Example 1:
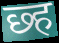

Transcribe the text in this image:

छ्ह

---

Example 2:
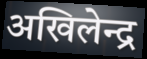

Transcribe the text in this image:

अखिलेन्द्र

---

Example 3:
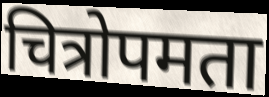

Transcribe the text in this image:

चित्रोपमता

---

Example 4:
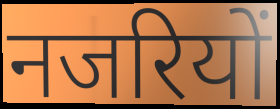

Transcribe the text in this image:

नजरियों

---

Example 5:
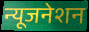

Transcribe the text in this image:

न्यूजनेशन